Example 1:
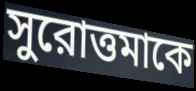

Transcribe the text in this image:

সুরোত্তমাকে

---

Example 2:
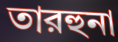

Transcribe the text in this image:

তারহুনা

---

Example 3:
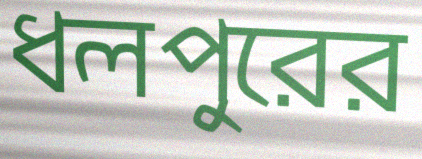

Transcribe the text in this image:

ধলপুরের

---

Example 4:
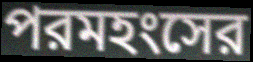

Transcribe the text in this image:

পরমহংসের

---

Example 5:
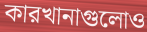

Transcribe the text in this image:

কারখানাগুলোও